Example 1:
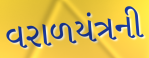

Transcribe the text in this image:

વરાળયંત્રની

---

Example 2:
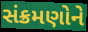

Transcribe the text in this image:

સંક્રમણોને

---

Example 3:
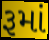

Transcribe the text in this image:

રૂમાં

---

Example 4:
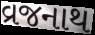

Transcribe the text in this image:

વ્રજનાથ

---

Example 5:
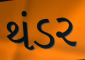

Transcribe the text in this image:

થંડર